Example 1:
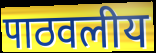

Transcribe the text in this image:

पाठवलीय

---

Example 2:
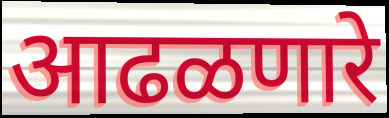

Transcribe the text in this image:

आढळणारे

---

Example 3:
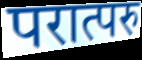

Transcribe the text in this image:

परात्परु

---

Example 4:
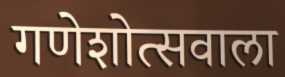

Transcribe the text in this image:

गणेशोत्सवाला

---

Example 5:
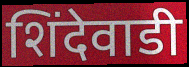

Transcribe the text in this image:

शिंदेवाडी